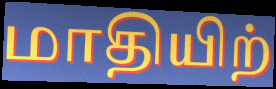
மாதியிற்